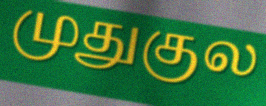
முதுகுல